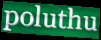
poluthu